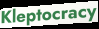
Kleptocracy